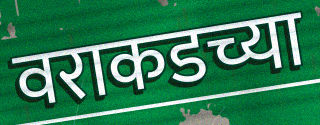
वराकडच्या